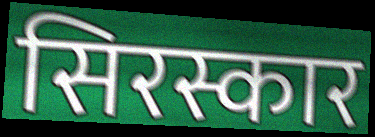
सिरस्कार